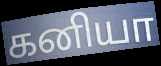
கனியா